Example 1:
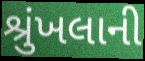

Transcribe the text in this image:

શ્રુંખલાની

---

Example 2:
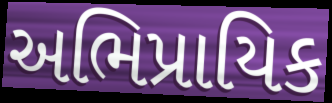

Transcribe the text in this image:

અભિપ્રાયિક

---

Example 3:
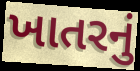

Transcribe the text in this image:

ખાતરનું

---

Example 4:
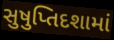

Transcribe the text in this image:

સુષુપ્તિદશામાં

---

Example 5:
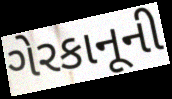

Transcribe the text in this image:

ગેરકાનૂની